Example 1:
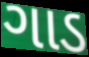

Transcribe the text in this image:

ગાડ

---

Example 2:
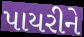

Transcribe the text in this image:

પાયરીને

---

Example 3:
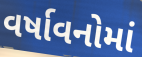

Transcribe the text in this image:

વર્ષાવનોમાં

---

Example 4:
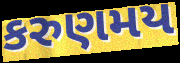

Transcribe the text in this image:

કરુણમય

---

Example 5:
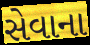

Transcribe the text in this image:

સેવાના